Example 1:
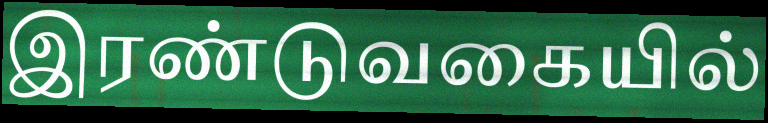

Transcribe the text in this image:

இரண்டுவகையில்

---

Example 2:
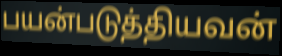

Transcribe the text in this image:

பயன்படுத்தியவன்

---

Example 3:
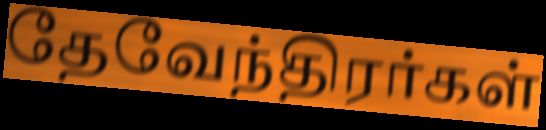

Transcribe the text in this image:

தேவேந்திரர்கள்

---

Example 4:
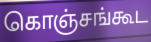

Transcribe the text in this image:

கொஞ்சங்கூட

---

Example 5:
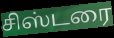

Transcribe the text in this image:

சிஸ்டரை